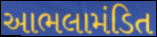
આભલામંડિત